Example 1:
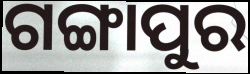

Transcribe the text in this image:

ଗଙ୍ଗାପୁର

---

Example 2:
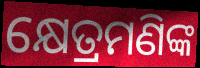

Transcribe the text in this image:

କ୍ଷେତ୍ରମଣିଙ୍କ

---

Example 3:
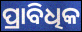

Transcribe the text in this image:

ପ୍ରାବିଧିକ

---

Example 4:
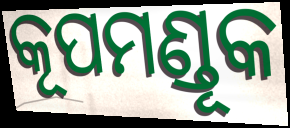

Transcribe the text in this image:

କୂପମଣ୍ଡୂକ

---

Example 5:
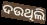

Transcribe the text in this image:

ଦଉଥିଲି